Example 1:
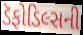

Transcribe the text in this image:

ડૅફોડિલ્સની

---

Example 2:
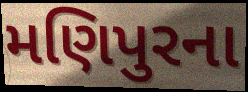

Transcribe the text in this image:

મણિપુરના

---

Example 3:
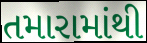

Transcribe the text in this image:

તમારામાંથી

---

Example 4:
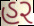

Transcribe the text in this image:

હર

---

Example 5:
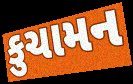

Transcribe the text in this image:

કુચામન